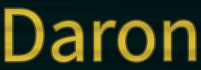
Daron